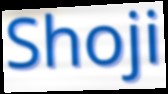
Shoji